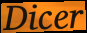
Dicer